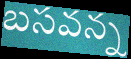
బసవన్న